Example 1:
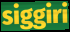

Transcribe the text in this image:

siggiri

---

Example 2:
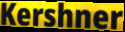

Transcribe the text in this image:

Kershner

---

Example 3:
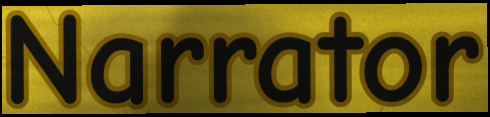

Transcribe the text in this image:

Narrator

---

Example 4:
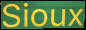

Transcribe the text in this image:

Sioux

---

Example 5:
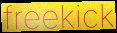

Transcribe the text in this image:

freekick